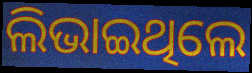
ଲିଭାଇଥିଲେ